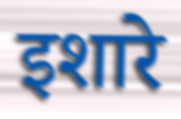
इशारे